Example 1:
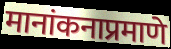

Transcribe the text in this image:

मानांकनाप्रमाणे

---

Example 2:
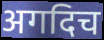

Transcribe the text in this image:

अगदिच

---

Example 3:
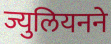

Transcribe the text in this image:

ज्युलियनने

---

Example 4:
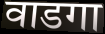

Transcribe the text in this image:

वाडगा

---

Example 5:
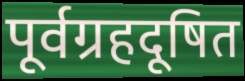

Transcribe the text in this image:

पूर्वग्रहदूषित